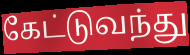
கேட்டுவந்து